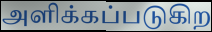
அளிக்கப்படுகிற